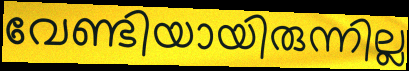
വേണ്ടിയായിരുന്നില്ല